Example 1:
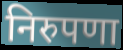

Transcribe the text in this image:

निरुपणा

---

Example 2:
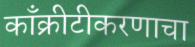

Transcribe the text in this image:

काँक्रीटीकरणाचा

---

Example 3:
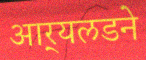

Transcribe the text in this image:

आर्यलडने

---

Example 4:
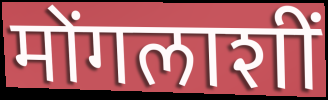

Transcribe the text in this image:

मोंगलाशीं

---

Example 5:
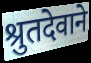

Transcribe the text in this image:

श्रुतदेवाने